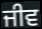
ਜੀਵ